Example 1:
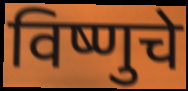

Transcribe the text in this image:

विष्णुचे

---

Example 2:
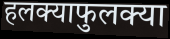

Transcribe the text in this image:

हलक्याफुलक्या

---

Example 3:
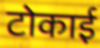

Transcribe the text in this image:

टोकाई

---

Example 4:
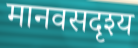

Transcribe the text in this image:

मानवसदृश्य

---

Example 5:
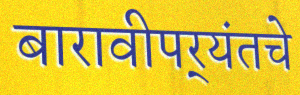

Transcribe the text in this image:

बारावीपर्यंतचे